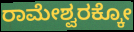
ರಾಮೇಶ್ವರಕ್ಕೋ